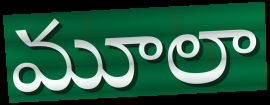
మూలా